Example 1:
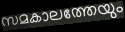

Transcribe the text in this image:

സമകാലത്തേയും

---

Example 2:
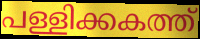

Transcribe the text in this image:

പള്ളിക്കകത്ത്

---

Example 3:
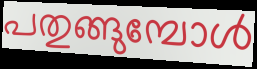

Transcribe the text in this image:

പതുങ്ങുമ്പോൾ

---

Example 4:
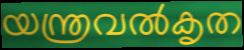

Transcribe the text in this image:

യന്ത്രവൽകൃത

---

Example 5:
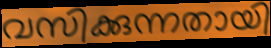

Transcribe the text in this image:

വസിക്കുന്നതായി